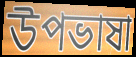
উপভাষা